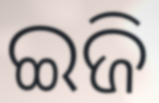
ଇଜି